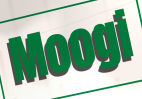
Moogi